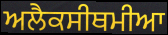
ਅਲੈਕਸੀਥਮੀਆ